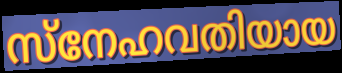
സ്നേഹവതിയായ